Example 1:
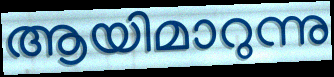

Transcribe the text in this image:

ആയിമാറുന്നു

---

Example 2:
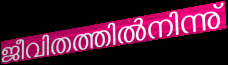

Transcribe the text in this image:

ജീവിതത്തിൽനിന്നു്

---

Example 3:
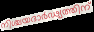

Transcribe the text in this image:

നിശ്ചയദാർഢ്യത്തിന്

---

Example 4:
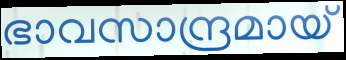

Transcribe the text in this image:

ഭാവസാന്ദ്രമായ്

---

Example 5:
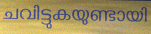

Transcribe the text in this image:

ചവിട്ടുകയുണ്ടായി